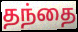
தந்தை